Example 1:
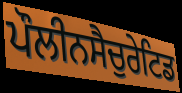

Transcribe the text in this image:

ਪੌਲੀਨਸੈਚੁਰੇਟਿਡ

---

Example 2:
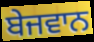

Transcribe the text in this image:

ਬੇਜਵਾਨ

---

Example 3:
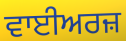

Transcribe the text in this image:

ਵਾਈਅਰਜ਼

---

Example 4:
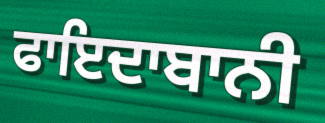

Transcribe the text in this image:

ਫਾਇਦਾਬਾਨੀ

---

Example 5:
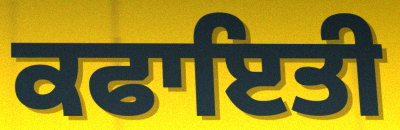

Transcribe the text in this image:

ਕਫਾਇਤੀ